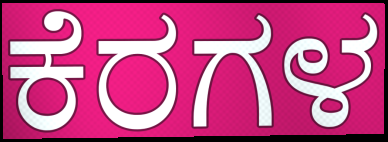
ಕೆರಗಳ